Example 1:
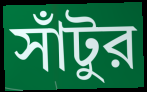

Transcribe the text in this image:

সাঁটুর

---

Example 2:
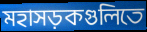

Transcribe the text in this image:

মহাসড়কগুলিতে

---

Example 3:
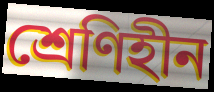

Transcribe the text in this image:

শ্রেণিহীন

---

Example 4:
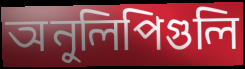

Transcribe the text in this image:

অনুলিপিগুলি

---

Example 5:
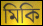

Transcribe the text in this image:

মিকি